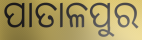
ପାତାଳପୁର